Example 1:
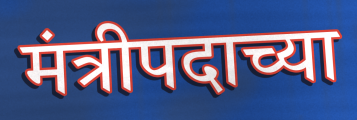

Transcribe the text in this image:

मंत्रीपदाच्या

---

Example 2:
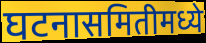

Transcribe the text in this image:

घटनासमितीमध्ये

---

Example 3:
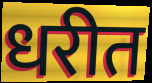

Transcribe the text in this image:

धरीत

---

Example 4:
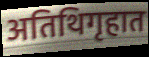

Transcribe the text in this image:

अतिथिगृहात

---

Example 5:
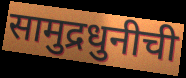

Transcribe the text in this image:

सामुद्रधुनीची